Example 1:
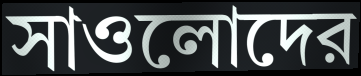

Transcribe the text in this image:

সাওলোদের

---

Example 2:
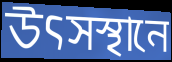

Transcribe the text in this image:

উৎসস্থানে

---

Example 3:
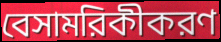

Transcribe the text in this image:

বেসামরিকীকরণ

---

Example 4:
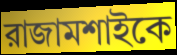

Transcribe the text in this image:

রাজামশাইকে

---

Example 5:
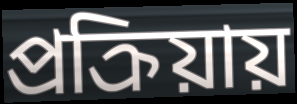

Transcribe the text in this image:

প্রক্রিয়ায়